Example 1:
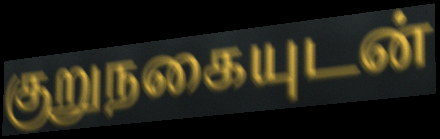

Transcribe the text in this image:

குறுநகையுடன்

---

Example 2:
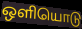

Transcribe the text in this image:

ஒளியொடு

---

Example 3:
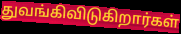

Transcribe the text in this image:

துவங்கிவிடுகிறார்கள்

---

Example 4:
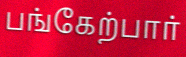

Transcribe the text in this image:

பங்கேற்பார்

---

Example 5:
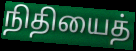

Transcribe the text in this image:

நிதியைத்